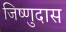
जिष्णुदास